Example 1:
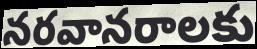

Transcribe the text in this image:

నరవానరాలకు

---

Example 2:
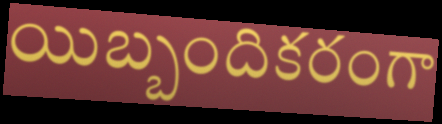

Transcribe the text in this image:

యిబ్బందికరంగా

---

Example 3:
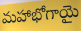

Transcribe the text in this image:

మహాభోగాయై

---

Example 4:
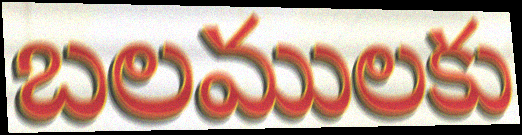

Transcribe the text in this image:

బలములకు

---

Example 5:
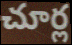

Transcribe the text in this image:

చూర్ల